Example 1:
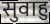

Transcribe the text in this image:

सुवाहु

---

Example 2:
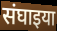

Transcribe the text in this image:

संघाइया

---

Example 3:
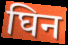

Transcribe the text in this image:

घिन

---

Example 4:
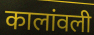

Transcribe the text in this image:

कालांवली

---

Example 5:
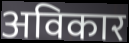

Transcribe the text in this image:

अविकार